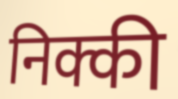
निक्की